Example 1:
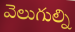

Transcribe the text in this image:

వెలుగుల్ని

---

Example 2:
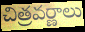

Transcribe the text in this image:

చిత్రవర్ణాలు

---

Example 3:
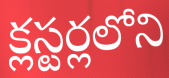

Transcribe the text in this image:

క్లస్టర్లలోని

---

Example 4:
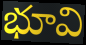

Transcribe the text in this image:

భూవి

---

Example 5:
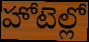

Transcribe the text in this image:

హోటెల్లో